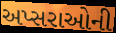
અપ્સરાઓની